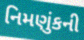
નિમણુંકની